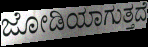
ಜೋಡಿಯಾಗುತ್ತದೆ